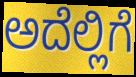
ಅದೆಲ್ಲಿಗೆ